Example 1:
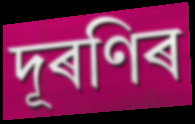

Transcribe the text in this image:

দূৰণিৰ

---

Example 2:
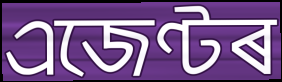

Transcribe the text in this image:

এজেণ্টৰ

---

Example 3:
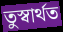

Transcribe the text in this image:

তুস্বাৰ্থত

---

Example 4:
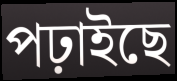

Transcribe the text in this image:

পঢ়াইছে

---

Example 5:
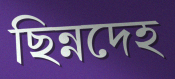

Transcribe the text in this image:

ছিন্নদেহ